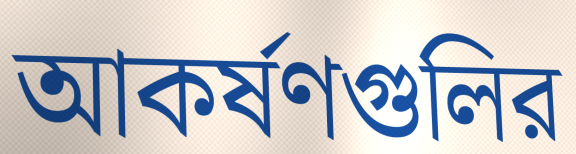
আকর্ষণগুলির